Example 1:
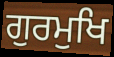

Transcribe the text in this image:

ਗੁਰਮੁਖਿ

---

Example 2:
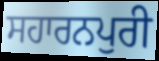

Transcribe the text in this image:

ਸਹਾਰਨਪੁਰੀ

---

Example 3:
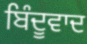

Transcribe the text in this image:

ਬਿੰਦੂਵਾਦ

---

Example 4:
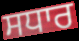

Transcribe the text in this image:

ਸਧਾਰ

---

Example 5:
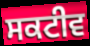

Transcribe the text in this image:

ਸਕਟੀਵ